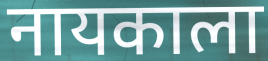
नायकाला